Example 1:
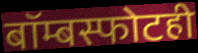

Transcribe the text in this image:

बॉम्बस्फोटही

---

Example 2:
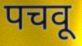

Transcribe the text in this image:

पचवू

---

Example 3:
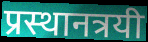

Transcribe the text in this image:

प्रस्थानत्रयी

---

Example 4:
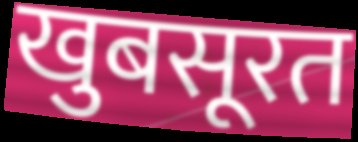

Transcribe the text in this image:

खुबसूरत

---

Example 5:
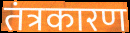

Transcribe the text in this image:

तंत्रकारण